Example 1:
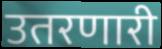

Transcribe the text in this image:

उतरणारी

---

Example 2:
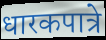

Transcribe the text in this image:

धारकपात्रे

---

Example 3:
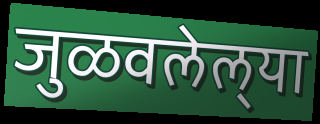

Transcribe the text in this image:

जुळवलेल्या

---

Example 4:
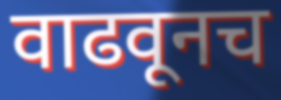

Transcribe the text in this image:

वाढवूनच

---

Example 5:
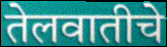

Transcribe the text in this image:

तेलवातीचे